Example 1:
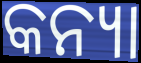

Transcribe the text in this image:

କନ୍ୟା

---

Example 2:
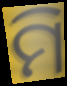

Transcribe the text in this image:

ମି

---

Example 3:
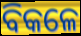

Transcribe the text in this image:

ବିକଳେ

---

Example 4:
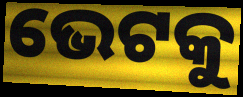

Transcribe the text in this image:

ଭେଟକୁ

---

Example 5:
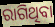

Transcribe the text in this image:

ରାଗିଥିବା